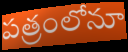
పత్రంలోనూ